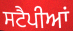
ਸਟੈਪੀਆਂ